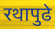
रथापुढे